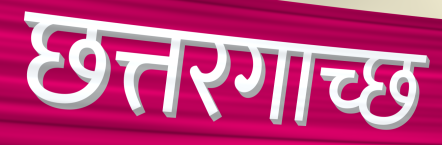
छत्तरगाच्छ